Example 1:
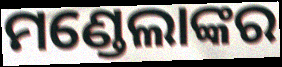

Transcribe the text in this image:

ମଣ୍ଡେଲାଙ୍କର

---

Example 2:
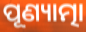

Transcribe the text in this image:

ପୂଣ୍ୟାତ୍ମା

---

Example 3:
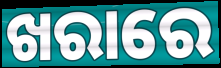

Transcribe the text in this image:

ଖରାରେ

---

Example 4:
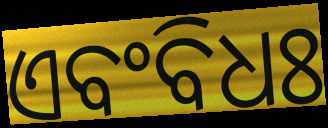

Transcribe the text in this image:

ଏବଂବିଧଃ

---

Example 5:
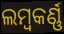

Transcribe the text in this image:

ଲମ୍ୱକର୍ଣ୍ଣ